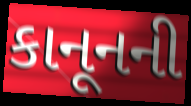
કાનૂનની